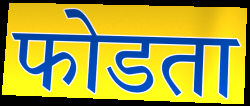
फोडता